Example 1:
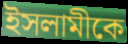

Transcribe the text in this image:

ইসলামীকে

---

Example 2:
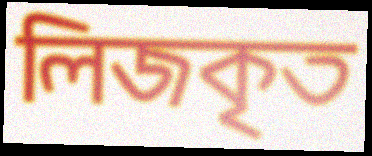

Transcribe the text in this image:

লিজকৃত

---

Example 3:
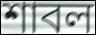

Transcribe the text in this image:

শাবল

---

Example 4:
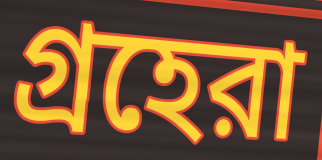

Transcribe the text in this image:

গ্রহেরা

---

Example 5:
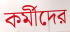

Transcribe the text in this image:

কর্মীদের